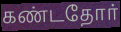
கண்டதோர்